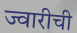
ज्वारीची